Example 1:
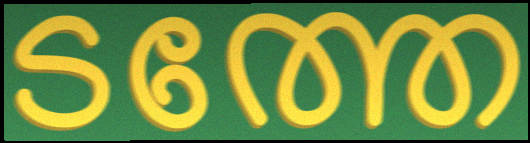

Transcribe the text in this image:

ടത്തേ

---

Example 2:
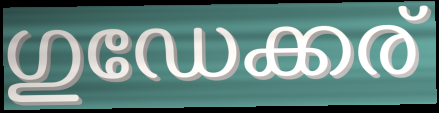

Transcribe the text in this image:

ഗുഡേക്കര്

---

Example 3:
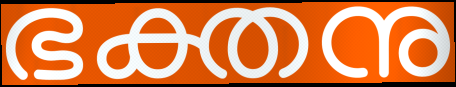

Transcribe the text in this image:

ഭക്തനു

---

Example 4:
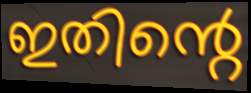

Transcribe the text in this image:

ഇതിന്റെ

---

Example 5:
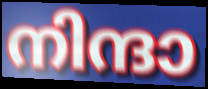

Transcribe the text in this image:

നിന്ദാ